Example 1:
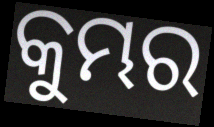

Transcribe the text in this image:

କୁମ୍ଭର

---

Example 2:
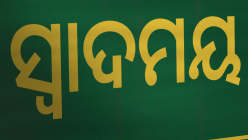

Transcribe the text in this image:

ସ୍ଵାଦମୟ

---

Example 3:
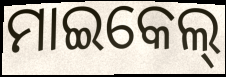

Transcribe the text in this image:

ମାଇକେଲ୍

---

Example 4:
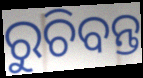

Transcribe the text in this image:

ରୁଚିବନ୍ତ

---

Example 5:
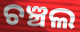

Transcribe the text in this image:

ଚଞ୍ଚଲ